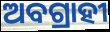
ଅବଗ୍ରାହୀ